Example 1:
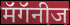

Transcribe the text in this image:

मॅगॅनीज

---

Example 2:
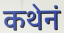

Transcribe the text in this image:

कथेनं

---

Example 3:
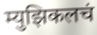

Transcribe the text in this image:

म्युझिकलचं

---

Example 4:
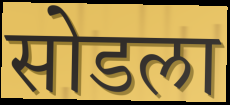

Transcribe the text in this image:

सोडला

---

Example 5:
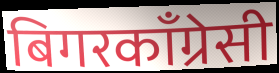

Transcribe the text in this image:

बिगरकाँग्रेसी